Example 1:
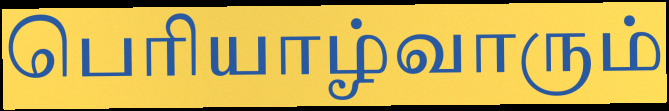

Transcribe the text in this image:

பெரியாழ்வாரும்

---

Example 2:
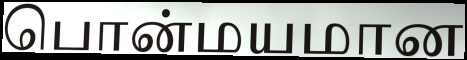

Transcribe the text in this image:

பொன்மயமான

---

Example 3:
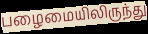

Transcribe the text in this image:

பழைமையிலிருந்து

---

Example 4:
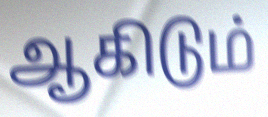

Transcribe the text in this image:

ஆகிடும்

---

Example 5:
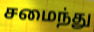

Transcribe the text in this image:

சமைந்து